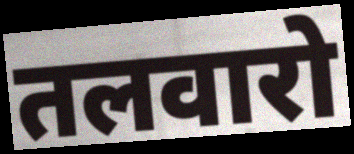
तलवारो